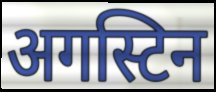
अगस्टिन